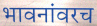
भावनांवरच